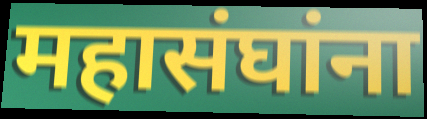
महासंघांना